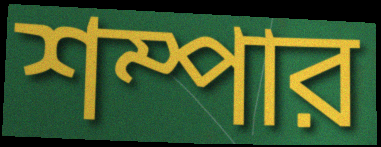
শম্পার